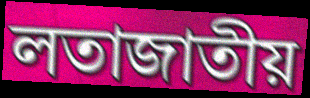
লতাজাতীয়